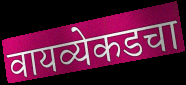
वायव्येकडचा